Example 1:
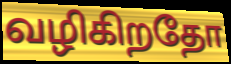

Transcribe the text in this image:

வழிகிறதோ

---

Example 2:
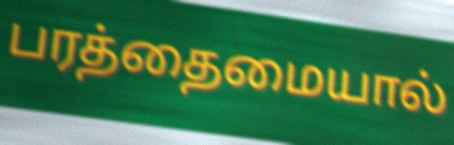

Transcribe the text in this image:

பரத்தைமையால்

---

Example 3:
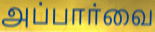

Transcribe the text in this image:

அப்பார்வை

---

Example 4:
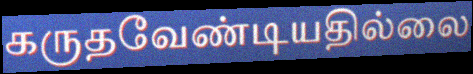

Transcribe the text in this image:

கருதவேண்டியதில்லை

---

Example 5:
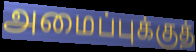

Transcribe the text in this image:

அமைப்புக்குத்